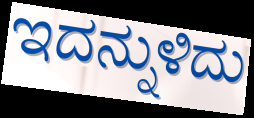
ಇದನ್ನುಳಿದು